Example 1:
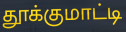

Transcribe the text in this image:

தூக்குமாட்டி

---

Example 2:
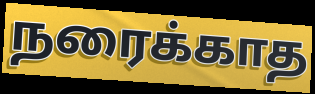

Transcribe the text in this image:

நரைக்காத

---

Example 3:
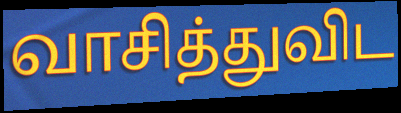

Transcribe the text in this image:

வாசித்துவிட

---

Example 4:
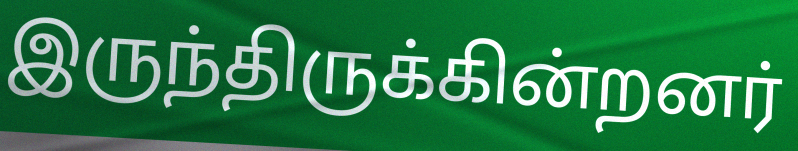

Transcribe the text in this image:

இருந்திருக்கின்றனர்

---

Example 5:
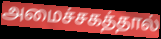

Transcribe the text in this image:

அமைச்சகத்தால்